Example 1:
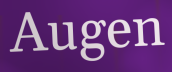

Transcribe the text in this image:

Augen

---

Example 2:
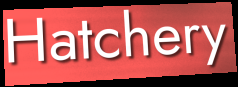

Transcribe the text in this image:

Hatchery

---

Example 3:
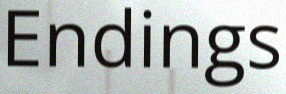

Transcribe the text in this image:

Endings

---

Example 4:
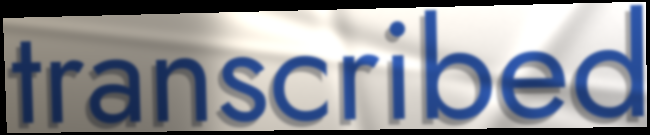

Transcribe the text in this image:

transcribed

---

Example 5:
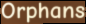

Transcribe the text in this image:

Orphans